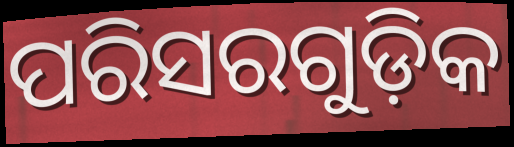
ପରିସରଗୁଡ଼ିକ